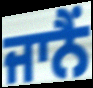
ਜਾਨੈਂ